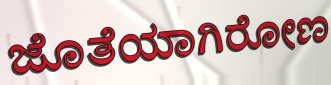
ಜೊತೆಯಾಗಿರೋಣ